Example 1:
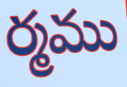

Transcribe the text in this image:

ర్మము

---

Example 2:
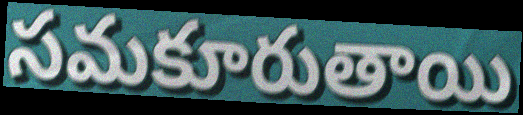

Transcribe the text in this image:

సమకూరుతాయి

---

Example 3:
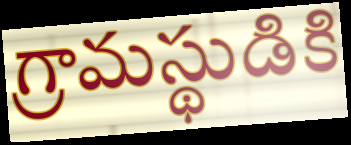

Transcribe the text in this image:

గ్రామస్థుడికి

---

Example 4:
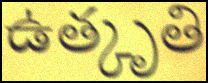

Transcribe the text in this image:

ఉత్కృతి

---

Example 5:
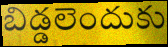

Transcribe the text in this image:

బిడ్డలెందుకు